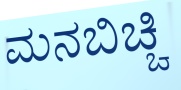
ಮನಬಿಚ್ಚಿ